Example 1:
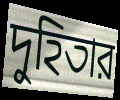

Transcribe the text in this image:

দুহিতার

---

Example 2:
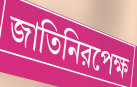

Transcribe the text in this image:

জাতিনিরপেক্ষ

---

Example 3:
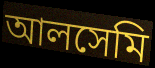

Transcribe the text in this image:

আলসেমি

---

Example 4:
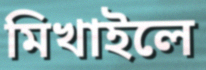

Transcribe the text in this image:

মিখাইলে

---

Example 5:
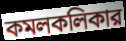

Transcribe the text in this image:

কমলকলিকার